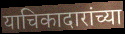
याचिकादारांच्या